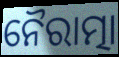
ନୈରାତ୍ମା